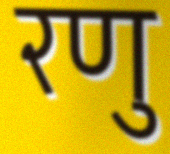
रणु